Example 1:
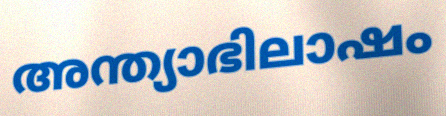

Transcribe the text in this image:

അന്ത്യാഭിലാഷം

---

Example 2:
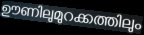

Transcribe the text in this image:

ഊണിലുമുറക്കത്തിലും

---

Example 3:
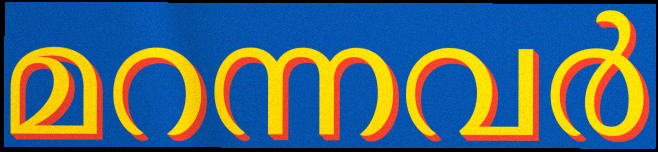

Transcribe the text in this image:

മറന്നവർ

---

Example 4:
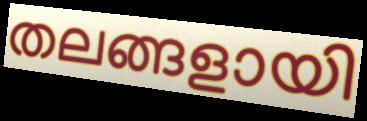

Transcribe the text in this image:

തലങ്ങളായി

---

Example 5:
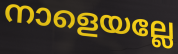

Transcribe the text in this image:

നാളെയല്ലേ